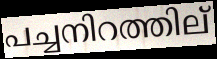
പച്ചനിറത്തില്